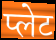
प्‍लेट